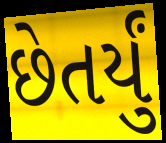
છેતર્યું